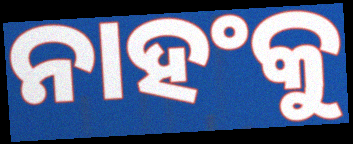
ନାହଂକୁ